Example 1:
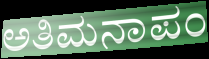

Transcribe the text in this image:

ಅತಿಮನಾಪಂ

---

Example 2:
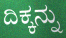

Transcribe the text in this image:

ದಿಕ್ಕನ್ನು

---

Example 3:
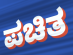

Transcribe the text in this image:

ಪಚಿತ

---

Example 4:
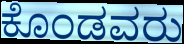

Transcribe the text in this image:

ಕೊಂಡವರು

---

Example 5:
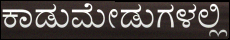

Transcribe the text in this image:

ಕಾಡುಮೇಡುಗಳಲ್ಲಿ